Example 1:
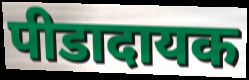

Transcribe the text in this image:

पीडादायक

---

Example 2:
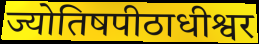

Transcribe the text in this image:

ज्योतिषपीठाधीश्वर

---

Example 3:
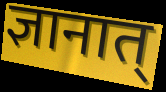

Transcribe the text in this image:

ज्ञानात्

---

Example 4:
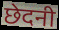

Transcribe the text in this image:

छेदनी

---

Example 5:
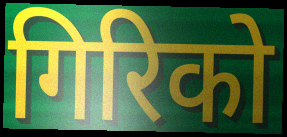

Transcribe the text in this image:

गिरिको